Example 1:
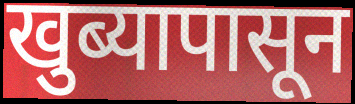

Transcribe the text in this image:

खुब्यापासून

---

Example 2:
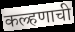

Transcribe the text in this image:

कल्हणाची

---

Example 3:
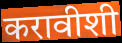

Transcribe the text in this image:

करावीशी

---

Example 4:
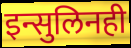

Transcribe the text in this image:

इन्सुलिनही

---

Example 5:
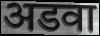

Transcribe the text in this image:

अडवा